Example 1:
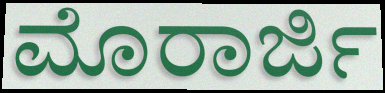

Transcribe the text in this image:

ಮೊರಾರ್ಜಿ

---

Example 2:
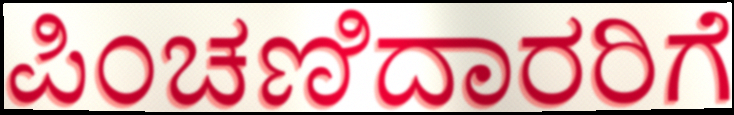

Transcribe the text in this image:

ಪಿಂಚಣಿದಾರರಿಗೆ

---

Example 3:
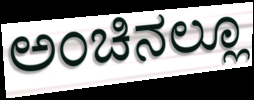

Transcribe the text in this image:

ಅಂಚಿನಲ್ಲೂ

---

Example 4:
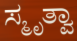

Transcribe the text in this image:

ಸ್ಮೃತ್ವಾ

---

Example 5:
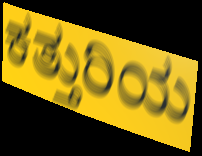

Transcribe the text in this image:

ಕತ್ತುರಿಯ